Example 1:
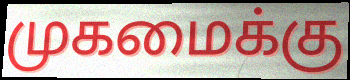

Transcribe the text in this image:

முகமைக்கு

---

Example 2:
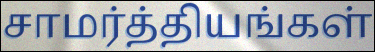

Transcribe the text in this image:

சாமர்த்தியங்கள்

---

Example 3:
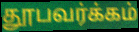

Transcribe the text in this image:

தூபவர்க்கம்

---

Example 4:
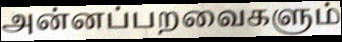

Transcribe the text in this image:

அன்னப்பறவைகளும்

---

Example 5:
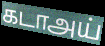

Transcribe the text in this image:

கடாஅய்